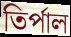
তিৰ্পাল